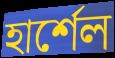
হার্শেল